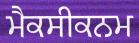
ਮੈਕਸੀਕਨਮ